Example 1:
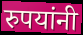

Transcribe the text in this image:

रुपयांनी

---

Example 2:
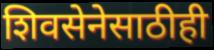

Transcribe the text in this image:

शिवसेनेसाठीही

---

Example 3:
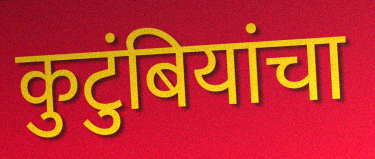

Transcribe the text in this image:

कुटुंबियांचा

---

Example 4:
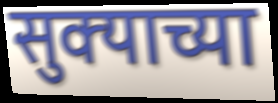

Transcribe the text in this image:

सुक्‍याच्या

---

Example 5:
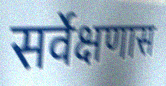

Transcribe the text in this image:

सर्वेक्षणास